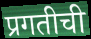
प्रगतीची